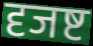
दृजष्ट